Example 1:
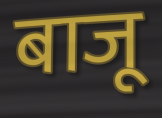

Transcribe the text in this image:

बाजू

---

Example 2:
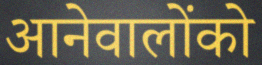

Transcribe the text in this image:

आनेवालोंको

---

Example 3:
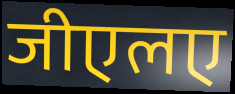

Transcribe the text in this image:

जीएलए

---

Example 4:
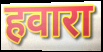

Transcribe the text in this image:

हवारा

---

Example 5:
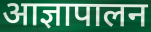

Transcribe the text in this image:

आज्ञापालन